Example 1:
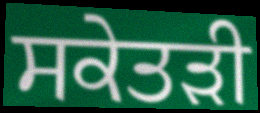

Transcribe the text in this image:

ਸਕੇਤੜੀ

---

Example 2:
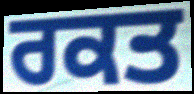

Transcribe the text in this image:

ਰਕਤ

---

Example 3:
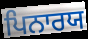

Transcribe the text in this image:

ਪਿਨਾਰਯ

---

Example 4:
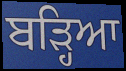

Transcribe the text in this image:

ਬੜ੍ਹਿਆ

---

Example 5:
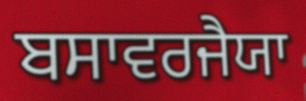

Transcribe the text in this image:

ਬਸਾਵਰਜੈਯਾ